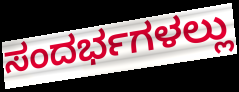
ಸಂದರ್ಭಗಳಲ್ಲು